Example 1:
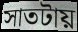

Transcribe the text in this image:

সাতটায়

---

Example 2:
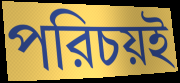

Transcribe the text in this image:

পরিচয়ই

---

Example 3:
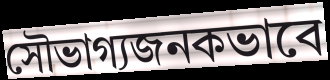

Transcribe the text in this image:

সৌভাগ্যজনকভাবে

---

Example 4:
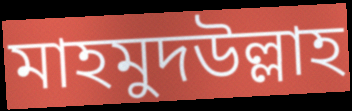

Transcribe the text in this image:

মাহমুদউল্লাহ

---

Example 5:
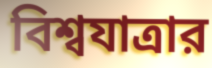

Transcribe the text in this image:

বিশ্বযাত্রার